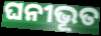
ଘନୀଭୂତ